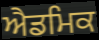
ਐਡਮਿਕ